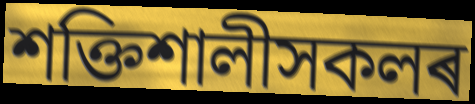
শক্তিশালীসকলৰ